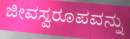
ಜೀವಸ್ವರೂಪವನ್ನು